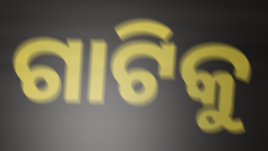
ଗାଟିକୁ